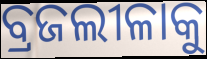
ବ୍ରଜଲୀଳାକୁ